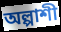
অল্পাশী